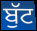
ਬੁੱਟ